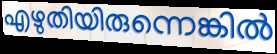
എഴുതിയിരുന്നെങ്കിൽ